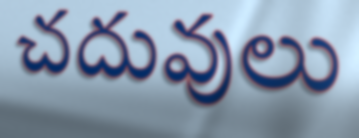
చదువులు